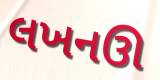
લખનઊ